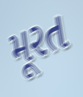
મૂરત